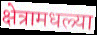
क्षेत्रामधल्या